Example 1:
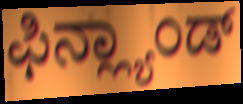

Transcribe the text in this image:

ಫಿನ್ಲ್ಯಾಂಡ್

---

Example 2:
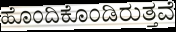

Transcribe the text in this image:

ಹೊಂದಿಕೊಂಡಿರುತ್ತವೆ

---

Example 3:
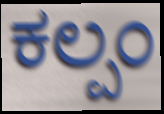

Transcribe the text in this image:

ಕಲ್ಪಂ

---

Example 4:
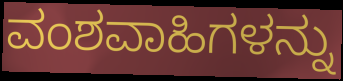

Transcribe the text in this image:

ವಂಶವಾಹಿಗಳನ್ನು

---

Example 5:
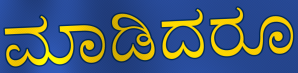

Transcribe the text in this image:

ಮಾಡಿದರೂ